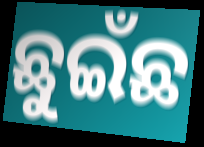
ଛୁଇଁଛ